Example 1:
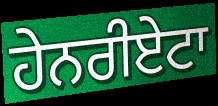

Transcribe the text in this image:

ਹੇਨਰੀਏਟਾ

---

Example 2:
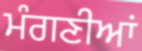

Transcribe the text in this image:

ਮੰਗਣੀਆਂ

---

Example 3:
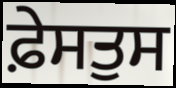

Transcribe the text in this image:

ਫ਼ੇਸਤੁਸ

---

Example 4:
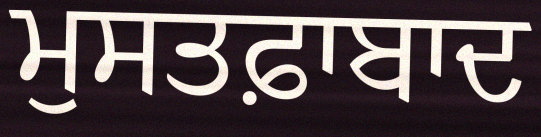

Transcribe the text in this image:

ਮੁਸਤਫ਼ਾਬਾਦ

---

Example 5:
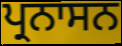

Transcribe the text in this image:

ਪ੍ਰਨਾਸਨ